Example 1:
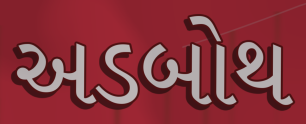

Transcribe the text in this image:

અડબોથ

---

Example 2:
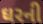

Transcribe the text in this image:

ઘરની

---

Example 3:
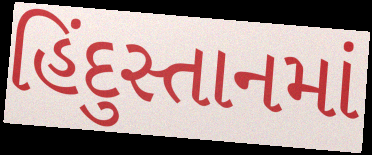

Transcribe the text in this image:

હિંદુસ્તાનમાં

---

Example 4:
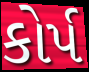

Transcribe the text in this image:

કોર્પ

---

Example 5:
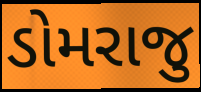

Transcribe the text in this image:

ડોમરાજુ